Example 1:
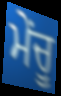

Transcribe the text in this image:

ਮੇਂਚੂ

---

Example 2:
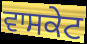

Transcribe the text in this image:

ਵਾਸਕੇਟ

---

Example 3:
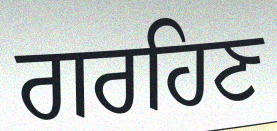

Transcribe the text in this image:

ਗਰਹਿਣ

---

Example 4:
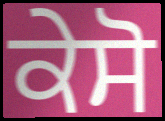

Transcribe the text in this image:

ਕੇਸੋ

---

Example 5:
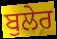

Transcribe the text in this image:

ਬੁਲੇਰ